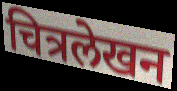
चित्रलेखन